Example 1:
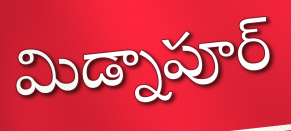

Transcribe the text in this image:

మిడ్నాపూర్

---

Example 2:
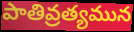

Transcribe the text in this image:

పాతివ్రత్యమున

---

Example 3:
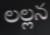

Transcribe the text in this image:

లల్లన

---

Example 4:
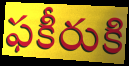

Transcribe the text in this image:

ఫకీరుకి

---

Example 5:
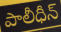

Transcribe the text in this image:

పాలీధీన్